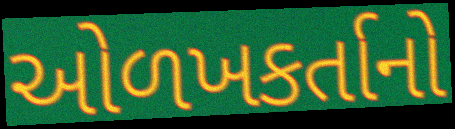
ઓળખકર્તાનો